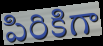
పిరికిగా